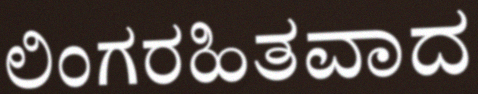
ಲಿಂಗರಹಿತವಾದ